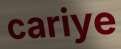
cariye